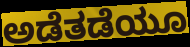
ಅಡೆತಡೆಯೂ